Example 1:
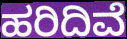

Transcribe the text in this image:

ಹರಿದಿವೆ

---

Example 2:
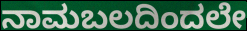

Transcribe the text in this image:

ನಾಮಬಲದಿಂದಲೇ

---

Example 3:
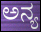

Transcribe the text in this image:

ಅನ್ಯ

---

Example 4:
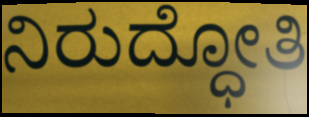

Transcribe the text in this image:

ನಿರುದ್ಧೋತಿ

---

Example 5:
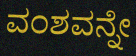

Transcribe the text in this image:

ವಂಶವನ್ನೇ